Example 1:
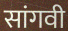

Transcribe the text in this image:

सांगवी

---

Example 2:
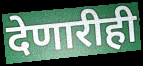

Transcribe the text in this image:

देणारीही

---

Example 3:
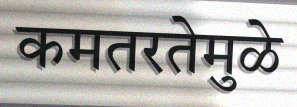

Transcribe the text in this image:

कमतरतेमुळे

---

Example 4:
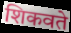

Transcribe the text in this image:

शिकवते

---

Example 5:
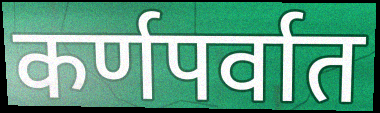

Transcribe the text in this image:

कर्णपर्वात